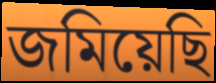
জমিয়েছি